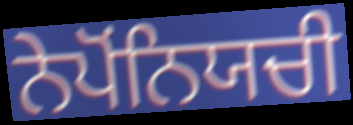
ਨੇਪੋਂਨਿਯਚੀ